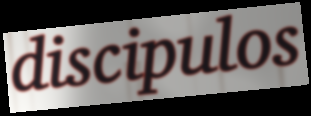
discipulos